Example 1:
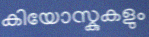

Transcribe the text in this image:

കിയോസ്കുകളും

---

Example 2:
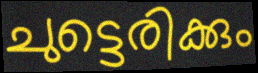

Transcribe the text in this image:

ചുട്ടെരിക്കും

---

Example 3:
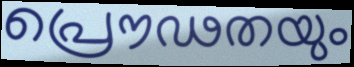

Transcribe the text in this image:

പ്രൌഢതയും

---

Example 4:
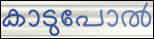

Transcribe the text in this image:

കാടുപോൽ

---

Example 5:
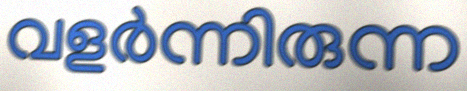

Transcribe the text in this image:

വളർന്നിരുന്ന